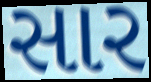
સાર